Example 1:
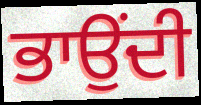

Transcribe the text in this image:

ਭਾਉਂਦੀ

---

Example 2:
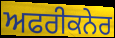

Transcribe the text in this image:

ਅਫਰੀਕਨੇਰ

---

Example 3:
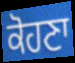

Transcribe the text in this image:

ਕੋਹਣਾ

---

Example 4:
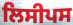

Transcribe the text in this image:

ਲਿਸੀਪਸ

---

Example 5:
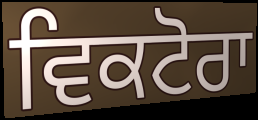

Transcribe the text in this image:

ਵਿਕਟੋਰਾ